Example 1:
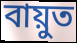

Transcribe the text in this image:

বায়ুত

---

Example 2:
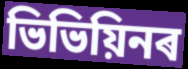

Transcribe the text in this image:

ভিভিয়িনৰ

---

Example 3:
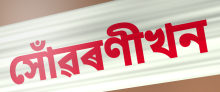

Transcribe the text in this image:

সোঁৱৰণীখন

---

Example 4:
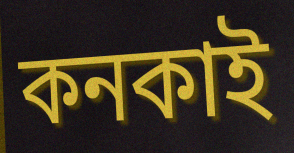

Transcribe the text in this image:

কনকাই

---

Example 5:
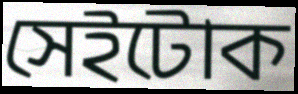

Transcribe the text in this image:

সেইটোক